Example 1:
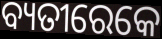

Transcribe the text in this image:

ବ୍ୟତୀରେକେ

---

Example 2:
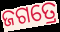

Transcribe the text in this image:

ଜଗତ୍ରେ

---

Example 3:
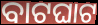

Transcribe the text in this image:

ବାଟଘାଟ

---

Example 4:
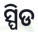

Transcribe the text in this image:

ସ୍ପିଡ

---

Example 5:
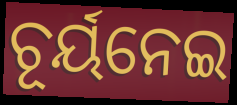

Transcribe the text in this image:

ଚୂର୍ୟନେଇ